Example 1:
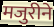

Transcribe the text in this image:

मजुरीने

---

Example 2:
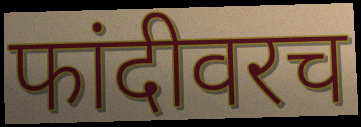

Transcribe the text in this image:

फांदीवरच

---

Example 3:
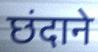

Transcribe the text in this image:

छंदाने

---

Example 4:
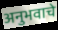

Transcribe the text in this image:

अनुभवाचे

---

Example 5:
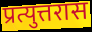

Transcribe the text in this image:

प्रत्युत्तरास